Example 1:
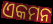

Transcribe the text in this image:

ଏକମନ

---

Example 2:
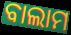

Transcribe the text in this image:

ବାଲାମ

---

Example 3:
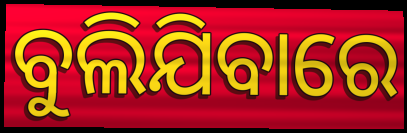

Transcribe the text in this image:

ବୁଲିଯିବାରେ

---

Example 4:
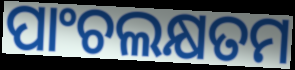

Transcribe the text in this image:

ପାଂଚଲକ୍ଷତମ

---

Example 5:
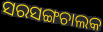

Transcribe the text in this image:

ସରସଙ୍ଗଚାଲକ